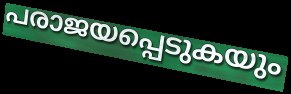
പരാജയപ്പെടുകയും